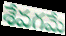
శేవగమే